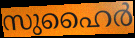
സുഹൈർ